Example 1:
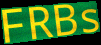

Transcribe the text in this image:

FRBs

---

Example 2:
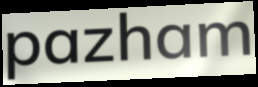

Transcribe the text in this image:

pazham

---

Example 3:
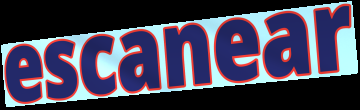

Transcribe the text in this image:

escanear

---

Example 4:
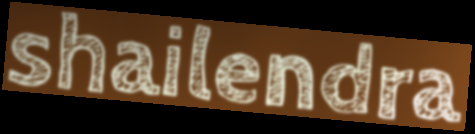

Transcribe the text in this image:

shailendra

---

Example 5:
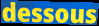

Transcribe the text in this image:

dessous